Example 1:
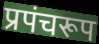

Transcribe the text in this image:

प्रपंचरूप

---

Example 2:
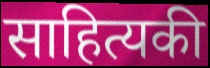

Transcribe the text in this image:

साहित्यकी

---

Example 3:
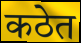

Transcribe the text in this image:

कठेत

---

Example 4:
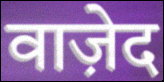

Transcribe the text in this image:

वाज़ेद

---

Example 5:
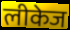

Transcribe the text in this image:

लीकेज